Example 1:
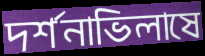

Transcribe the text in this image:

দর্শনাভিলাষে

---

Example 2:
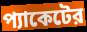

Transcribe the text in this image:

প্যাকেটের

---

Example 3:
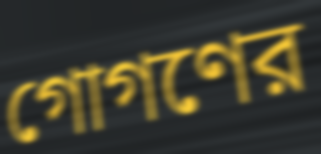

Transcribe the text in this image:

গোগণের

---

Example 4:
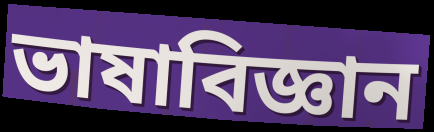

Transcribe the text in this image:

ভাষাবিজ্ঞান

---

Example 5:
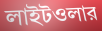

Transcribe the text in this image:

লাইটওলার